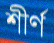
শীৰ্ণ